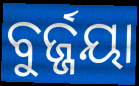
ବୁର୍ଜ୍ଜୟା